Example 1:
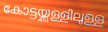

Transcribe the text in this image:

കോട്ടയ്ക്കുള്ളിലുള്ള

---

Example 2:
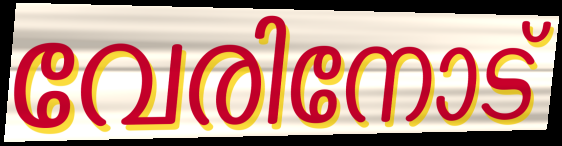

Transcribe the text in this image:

വേരിനോട്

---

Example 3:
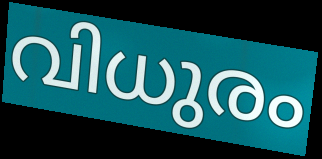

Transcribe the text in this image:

വിധുരം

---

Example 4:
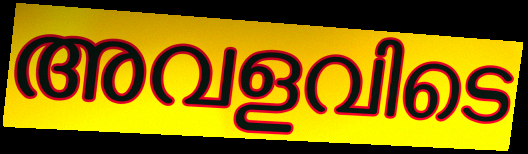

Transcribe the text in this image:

അവളവിടെ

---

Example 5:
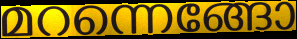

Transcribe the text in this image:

മറന്നെങ്ങോ